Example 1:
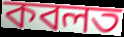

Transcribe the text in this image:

কবলত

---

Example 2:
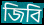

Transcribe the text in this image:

জিবি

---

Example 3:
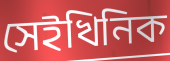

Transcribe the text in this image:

সেইখিনিক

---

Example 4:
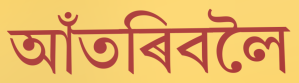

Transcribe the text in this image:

আঁতৰিবলৈ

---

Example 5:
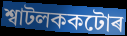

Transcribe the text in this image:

শ্বাটলককটোৰ